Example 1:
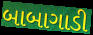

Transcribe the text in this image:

બાબાગાડી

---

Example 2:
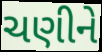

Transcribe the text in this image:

ચણીને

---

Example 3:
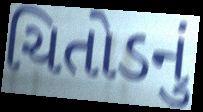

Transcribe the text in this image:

ચિતોડનું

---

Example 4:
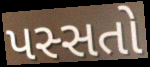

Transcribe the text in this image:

પસ્સતો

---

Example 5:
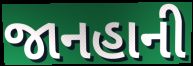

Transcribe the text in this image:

જાનહાની